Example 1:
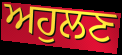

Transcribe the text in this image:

ਅਹੁਲਣ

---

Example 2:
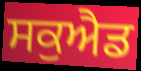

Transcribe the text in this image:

ਸਕੁਐਡ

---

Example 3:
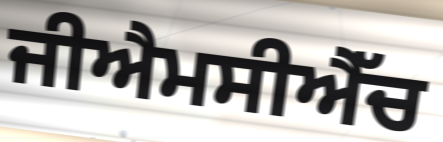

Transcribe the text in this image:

ਜੀਐਮਸੀਐੱਚ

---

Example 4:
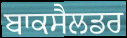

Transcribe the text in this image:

ਬਾਕਸੈਲਡਰ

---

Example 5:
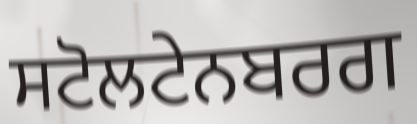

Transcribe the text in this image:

ਸਟੋਲਟੇਨਬਰਗ